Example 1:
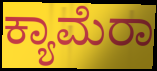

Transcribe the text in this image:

ಕ್ಯಾಮೆರಾ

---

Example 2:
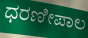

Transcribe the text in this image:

ಧರಣೀಪಾಲ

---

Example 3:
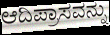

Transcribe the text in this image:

ಆದಿಪ್ರಾಸವನ್ನು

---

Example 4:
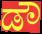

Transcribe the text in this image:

ಡೌ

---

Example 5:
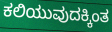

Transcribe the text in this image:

ಕಲಿಯುವುದಕ್ಕಿಂತ